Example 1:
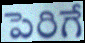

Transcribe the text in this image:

పెరిగే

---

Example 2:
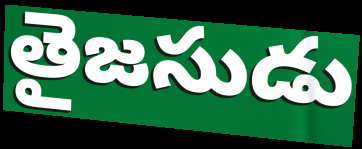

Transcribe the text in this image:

తైజసుడు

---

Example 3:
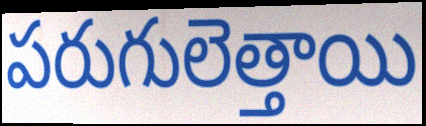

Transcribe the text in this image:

పరుగులెత్తాయి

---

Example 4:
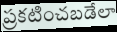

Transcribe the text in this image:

ప్రకటించబడేలా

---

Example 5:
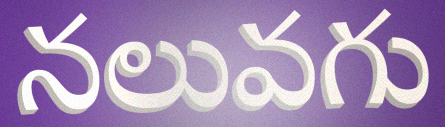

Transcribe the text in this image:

నలువగు